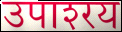
उपाश्रय